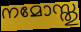
നമോസ്തു